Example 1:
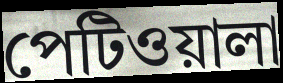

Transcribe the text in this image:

পেটিওয়ালা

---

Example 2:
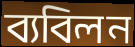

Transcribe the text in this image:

ব্যবিলন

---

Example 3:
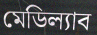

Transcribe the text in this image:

মেডিল্যাব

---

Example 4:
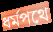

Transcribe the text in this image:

ধর্মপথে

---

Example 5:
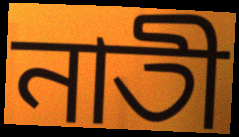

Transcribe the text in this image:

নাতী